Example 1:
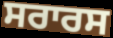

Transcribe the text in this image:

ਸਰਾਰਸ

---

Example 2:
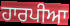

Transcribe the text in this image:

ਹਾਰਪੀਆ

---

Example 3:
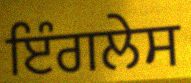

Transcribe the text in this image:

ਇੰਗਲੇਸ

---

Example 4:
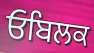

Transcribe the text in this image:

ਓਬਿਲਕ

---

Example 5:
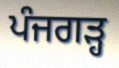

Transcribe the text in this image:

ਪੰਜਗੜ੍ਹ